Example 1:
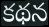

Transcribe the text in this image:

కథన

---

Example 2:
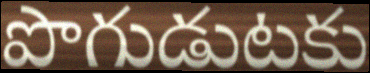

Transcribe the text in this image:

పొగుడుటకు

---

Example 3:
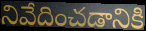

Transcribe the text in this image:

నివేదించడానికి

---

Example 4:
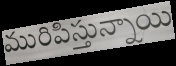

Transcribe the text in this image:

మురిపిస్తున్నాయి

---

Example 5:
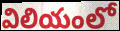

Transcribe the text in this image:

విలియంలో